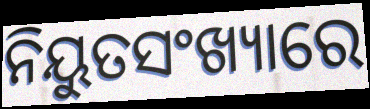
ନିୟୁତସଂଖ୍ୟାରେ